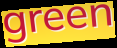
green